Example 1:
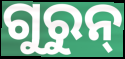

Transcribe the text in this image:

ଗୁରୁନ୍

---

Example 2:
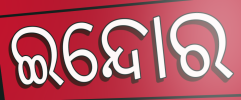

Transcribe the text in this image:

ଇନ୍ଦୋର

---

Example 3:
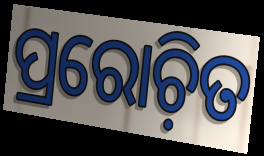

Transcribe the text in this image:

ପ୍ରରୋଚ଼ିତ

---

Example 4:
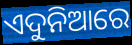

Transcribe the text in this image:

ଏଦୁନିଆରେ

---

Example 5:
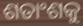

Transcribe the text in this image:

ଶତାଂଶକୁ